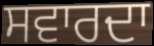
ਸਵਾਰਦਾ